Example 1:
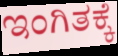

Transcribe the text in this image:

ಇಂಗಿತಕ್ಕೆ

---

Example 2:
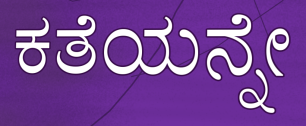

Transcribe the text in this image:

ಕತೆಯನ್ನೇ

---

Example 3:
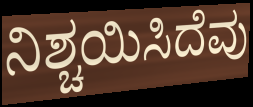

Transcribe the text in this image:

ನಿಶ್ಚಯಿಸಿದೆವು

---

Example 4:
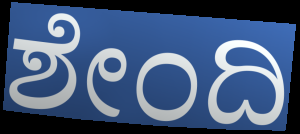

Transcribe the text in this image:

ಶೇಂದಿ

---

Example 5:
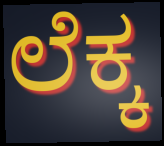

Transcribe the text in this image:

ಲೆಕ್ಕ